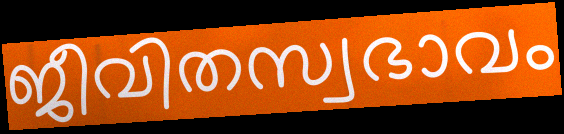
ജീവിതസ്വഭാവം